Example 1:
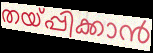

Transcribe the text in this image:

തയ്പ്പിക്കാൻ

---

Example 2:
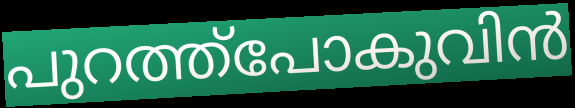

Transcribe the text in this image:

പുറത്ത്പോകുവിൻ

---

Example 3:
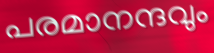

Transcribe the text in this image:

പരമാനന്ദവും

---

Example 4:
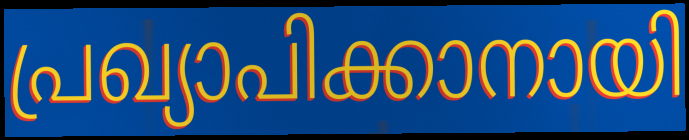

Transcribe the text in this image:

പ്രഖ്യാപിക്കാനായി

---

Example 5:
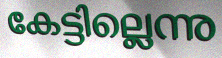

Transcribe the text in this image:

കേട്ടില്ലെന്നു